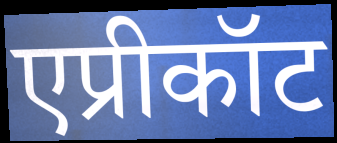
एप्रीकॉट